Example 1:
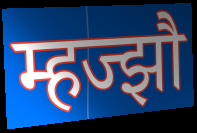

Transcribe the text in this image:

म्हज्झौ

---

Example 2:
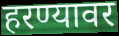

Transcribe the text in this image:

हरण्यावर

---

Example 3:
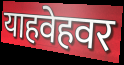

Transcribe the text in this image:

याहवेहवर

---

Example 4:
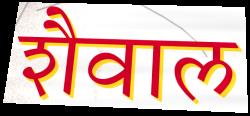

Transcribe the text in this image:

शैवाल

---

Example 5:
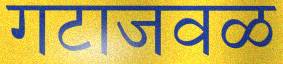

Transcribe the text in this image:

गटाजवळ